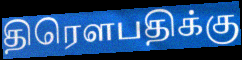
திரௌபதிக்கு